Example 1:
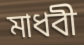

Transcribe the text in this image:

মাধবী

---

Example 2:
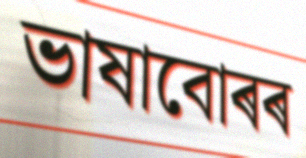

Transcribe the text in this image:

ভাষাবোৰৰ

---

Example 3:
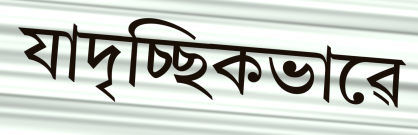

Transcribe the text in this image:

যাদৃচ্ছিকভাৱে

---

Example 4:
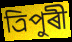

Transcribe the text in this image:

ত্ৰিপুৰী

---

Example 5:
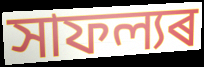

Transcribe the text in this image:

সাফল্যৰ